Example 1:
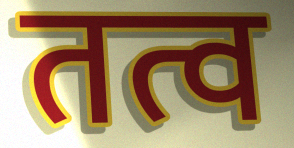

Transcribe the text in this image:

तत्व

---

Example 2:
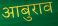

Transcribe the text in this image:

आबुराव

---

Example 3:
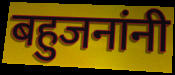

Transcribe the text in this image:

बहुजनांनी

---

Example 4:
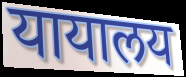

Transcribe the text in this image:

यायालय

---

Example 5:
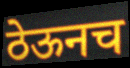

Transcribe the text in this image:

ठेऊनच